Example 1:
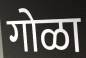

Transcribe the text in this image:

गोळा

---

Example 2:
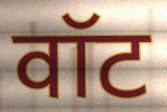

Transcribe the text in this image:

वॉट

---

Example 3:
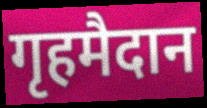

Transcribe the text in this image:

गृहमैदान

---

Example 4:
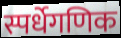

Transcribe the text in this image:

स्पर्धेगणिक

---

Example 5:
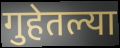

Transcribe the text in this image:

गुहेतल्या